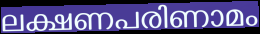
ലക്ഷണപരിണാമം